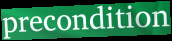
precondition